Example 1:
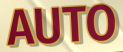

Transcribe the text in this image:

AUTO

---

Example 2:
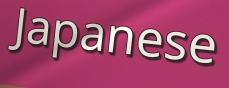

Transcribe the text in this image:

Japanese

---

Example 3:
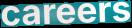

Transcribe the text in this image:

careers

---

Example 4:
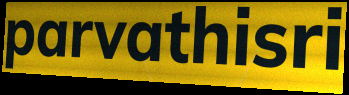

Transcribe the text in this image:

parvathisri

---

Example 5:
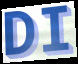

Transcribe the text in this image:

DI